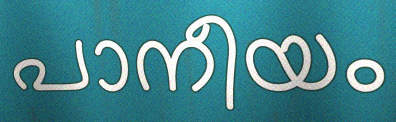
പാനീയം